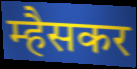
म्हैसकर